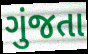
ગુંજતા